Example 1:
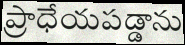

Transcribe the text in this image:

ప్రాధేయపడ్డాను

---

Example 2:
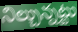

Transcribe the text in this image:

నిల్చున్నట్టు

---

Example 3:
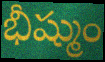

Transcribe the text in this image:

భీష్ముం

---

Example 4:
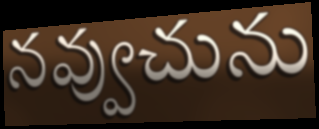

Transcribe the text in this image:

నవ్వుచును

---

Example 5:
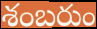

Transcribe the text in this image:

శంబరుం